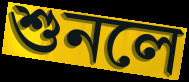
শুনলে